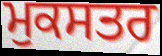
ਮੁਕਸਤਰ